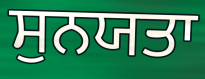
ਸੁਨਯਤਾ